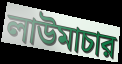
লাউমাচার